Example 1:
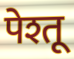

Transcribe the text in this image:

पेश्तू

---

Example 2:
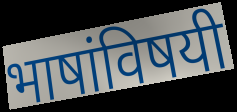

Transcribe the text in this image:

भाषांविषयी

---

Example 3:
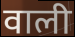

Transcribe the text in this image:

वाली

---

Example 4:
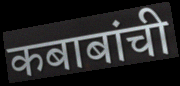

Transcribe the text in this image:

कबाबांची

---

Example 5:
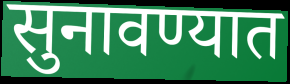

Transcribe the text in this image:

सुनावण्यात